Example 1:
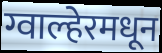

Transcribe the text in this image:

ग्वाल्हेरमधून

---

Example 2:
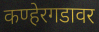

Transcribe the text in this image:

कण्हेरगडावर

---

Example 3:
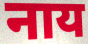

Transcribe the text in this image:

नाय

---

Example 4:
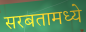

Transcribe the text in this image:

सरबतामध्ये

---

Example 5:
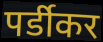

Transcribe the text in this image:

पर्डीकर